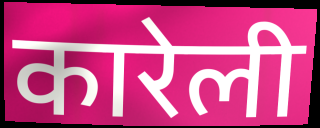
कारेली